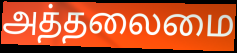
அத்தலைமை